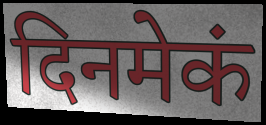
दिनमेकं